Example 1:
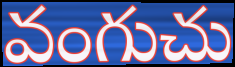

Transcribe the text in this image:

వంగుచు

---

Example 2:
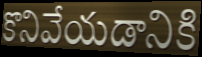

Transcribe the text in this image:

కొనివేయడానికి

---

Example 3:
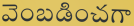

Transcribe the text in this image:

వెంబడించగా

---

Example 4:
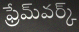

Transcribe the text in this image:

ఫ్రేమ్‌వర్క్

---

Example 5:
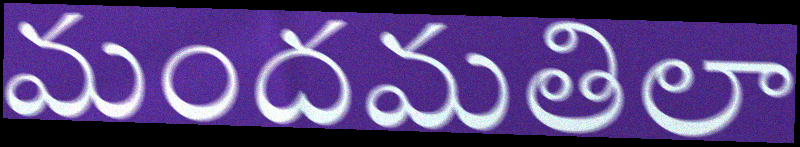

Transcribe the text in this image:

మందమతిలా